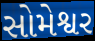
સોમેશ્વર